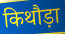
किथौड़ा